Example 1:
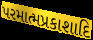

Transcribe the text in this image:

પરમાત્મપ્રકાશાદિ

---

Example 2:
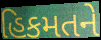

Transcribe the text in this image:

હિકમતને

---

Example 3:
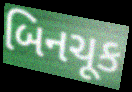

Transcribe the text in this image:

બિનચૂક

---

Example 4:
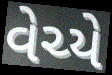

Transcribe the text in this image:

વેચ્યે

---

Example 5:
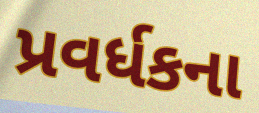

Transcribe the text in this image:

પ્રવર્ધકના